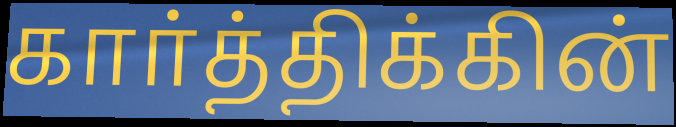
கார்த்திக்கின்